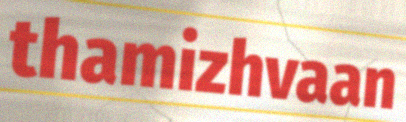
thamizhvaan